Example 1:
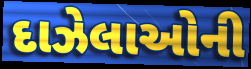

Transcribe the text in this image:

દાઝેલાઓની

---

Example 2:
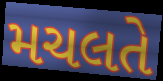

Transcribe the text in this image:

મચલતે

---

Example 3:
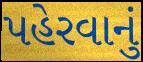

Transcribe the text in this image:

પહેરવાનું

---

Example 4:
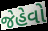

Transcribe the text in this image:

જેહેવો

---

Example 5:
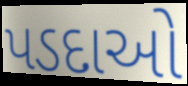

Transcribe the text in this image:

પડદાઓ